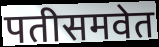
पतीसमवेत